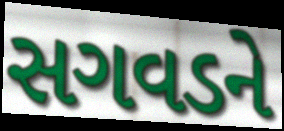
સગવડને